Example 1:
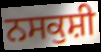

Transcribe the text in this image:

ਨਸਕੁਸ਼ੀ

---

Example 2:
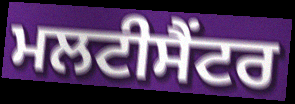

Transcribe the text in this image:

ਮਲਟੀਸੈਂਟਰ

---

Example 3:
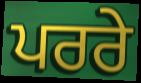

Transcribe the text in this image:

ਪਰਰੇ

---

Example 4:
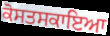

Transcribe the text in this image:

ਕੋਸਤਸਕਾਇਆ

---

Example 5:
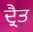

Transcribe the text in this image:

ਦ੍ਰੈਤ